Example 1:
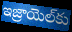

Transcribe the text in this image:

ఇజ్రాయెల్‌కు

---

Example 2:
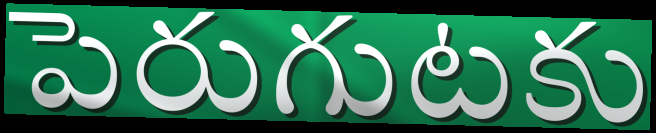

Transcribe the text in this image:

పెరుగుటకు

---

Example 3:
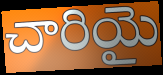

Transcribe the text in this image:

చారియై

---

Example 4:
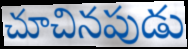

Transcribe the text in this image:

చూచినపుడు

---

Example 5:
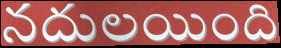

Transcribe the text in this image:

నదులయింది